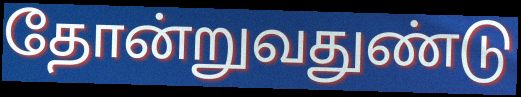
தோன்றுவதுண்டு